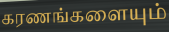
கரணங்களையும்